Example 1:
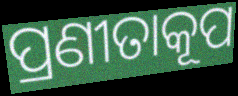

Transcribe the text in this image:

ପ୍ରଣୀତାକୂପ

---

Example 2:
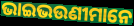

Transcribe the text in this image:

ଭାଇଭଉଣୀମାନେ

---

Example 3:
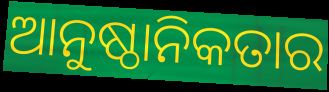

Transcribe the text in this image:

ଆନୁଷ୍ଠାନିକତାର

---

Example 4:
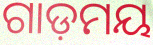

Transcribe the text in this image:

ଗାଡ଼ମୟ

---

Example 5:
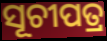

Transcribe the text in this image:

ସୂଚୀପତ୍ର